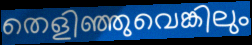
തെളിഞ്ഞുവെങ്കിലും